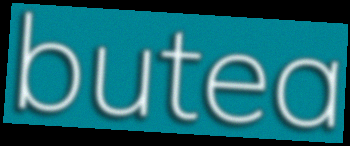
butea